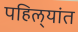
पहिल्यांत